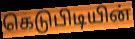
கெடுபிடியின்